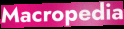
Macropedia